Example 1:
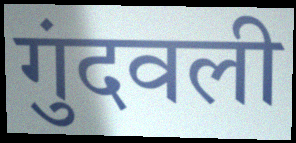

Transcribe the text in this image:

गुंदवली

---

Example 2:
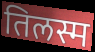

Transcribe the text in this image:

तिलस्म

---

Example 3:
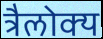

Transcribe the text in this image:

त्रैलोक्य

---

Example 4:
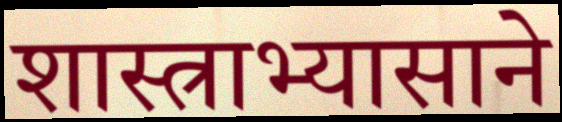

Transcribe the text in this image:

शास्त्राभ्यासाने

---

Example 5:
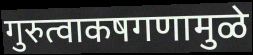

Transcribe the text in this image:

गुरुत्वाकषगणामुळे